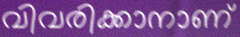
വിവരിക്കാനാണ്